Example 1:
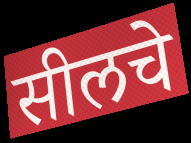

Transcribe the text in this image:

सीलचे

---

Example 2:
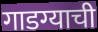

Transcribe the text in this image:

गाडग्याची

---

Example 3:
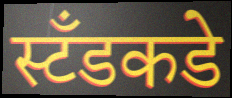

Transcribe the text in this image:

स्टॅंडकडे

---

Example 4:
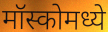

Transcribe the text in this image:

मॉस्कोमध्ये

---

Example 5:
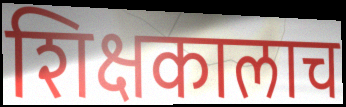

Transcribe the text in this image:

शिक्षकालाच